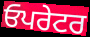
ਓਪਰੇਟਰ